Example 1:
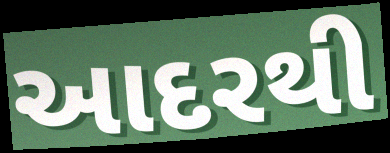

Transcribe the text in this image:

આદરથી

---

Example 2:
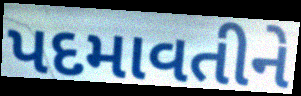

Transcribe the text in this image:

પદમાવતીને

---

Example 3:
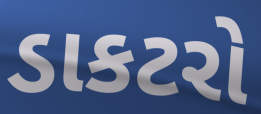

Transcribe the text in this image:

ડાકટરો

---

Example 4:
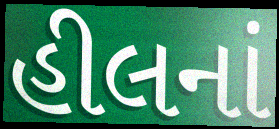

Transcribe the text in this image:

હીલનાં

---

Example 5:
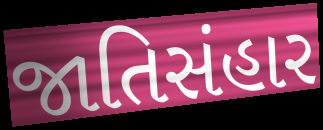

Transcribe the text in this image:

જાતિસંહાર